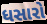
ધસારો